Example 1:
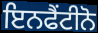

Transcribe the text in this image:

ਇਨਫੈਂਟੀਨੋ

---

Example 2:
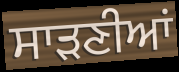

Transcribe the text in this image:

ਸਾੜਣੀਆਂ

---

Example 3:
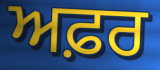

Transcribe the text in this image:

ਅਫ਼ਰ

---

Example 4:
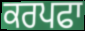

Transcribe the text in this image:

ਕਰਪਫਾ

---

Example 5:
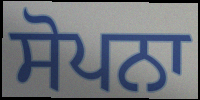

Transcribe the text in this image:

ਸੋਪਨਾ